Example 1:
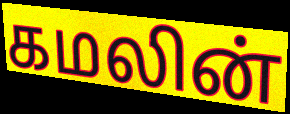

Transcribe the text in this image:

கமலின்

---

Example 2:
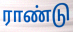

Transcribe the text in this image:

ராண்டு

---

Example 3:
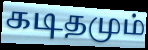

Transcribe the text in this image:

கடிதமும்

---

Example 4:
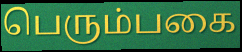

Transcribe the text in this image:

பெரும்பகை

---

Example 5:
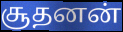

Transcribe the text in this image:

சூதனன்